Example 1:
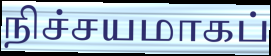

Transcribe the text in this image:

நிச்சயமாகப்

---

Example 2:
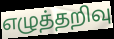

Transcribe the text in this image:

எழுத்தறிவு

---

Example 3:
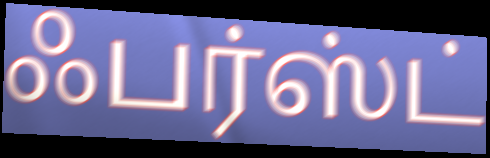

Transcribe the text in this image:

ஃபர்ஸ்ட்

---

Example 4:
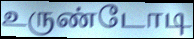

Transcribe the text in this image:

உருண்டோடி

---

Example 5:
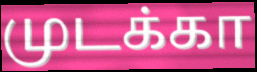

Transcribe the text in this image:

முடக்கா